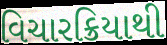
વિચારક્રિયાથી